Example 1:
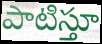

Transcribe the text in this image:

పాటిస్తూ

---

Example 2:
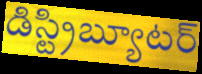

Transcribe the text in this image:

డిస్ట్రిబ్యూటర్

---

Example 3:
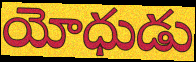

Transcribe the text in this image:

యోధుడు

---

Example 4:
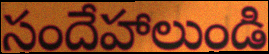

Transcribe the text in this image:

సందేహాలుండి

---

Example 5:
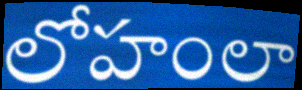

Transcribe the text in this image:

లోహంలా